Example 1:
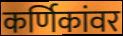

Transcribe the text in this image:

कर्णिकांवर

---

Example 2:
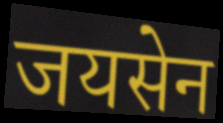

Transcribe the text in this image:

जयसेन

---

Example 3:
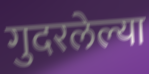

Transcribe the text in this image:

गुदरलेल्या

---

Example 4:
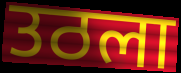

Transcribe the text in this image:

उठला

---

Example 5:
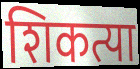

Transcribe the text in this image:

शिकत्या